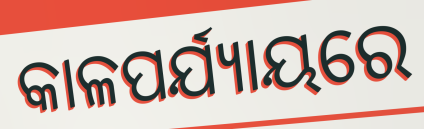
କାଳପର୍ଯ୍ୟାୟରେ